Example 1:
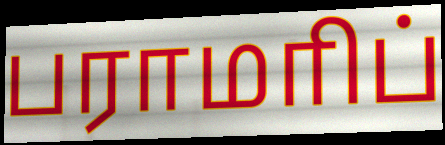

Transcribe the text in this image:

பராமரிப்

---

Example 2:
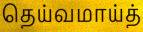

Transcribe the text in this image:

தெய்வமாய்த்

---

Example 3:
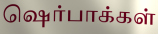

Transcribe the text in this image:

ஷெர்பாக்கள்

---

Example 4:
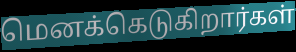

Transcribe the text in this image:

மெனக்கெடுகிறார்கள்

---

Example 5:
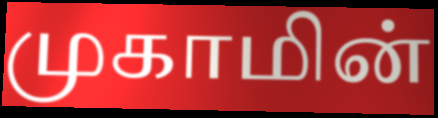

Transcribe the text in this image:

முகாமின்